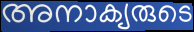
അനാക്യരുടെ